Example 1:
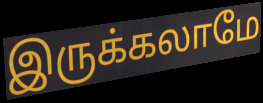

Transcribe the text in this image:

இருக்கலாமே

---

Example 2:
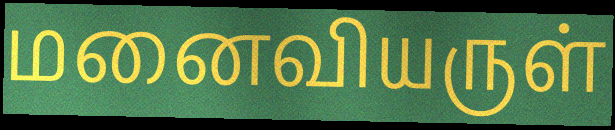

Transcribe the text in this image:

மனைவியருள்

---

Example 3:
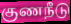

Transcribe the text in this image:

குணநீடு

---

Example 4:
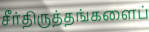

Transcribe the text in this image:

சீர்திருத்தங்களைப்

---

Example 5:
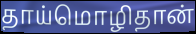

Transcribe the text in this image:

தாய்மொழிதான்